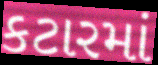
કટારમાં